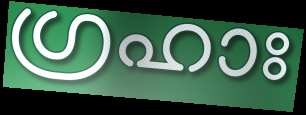
ഗ്രഹാഃ